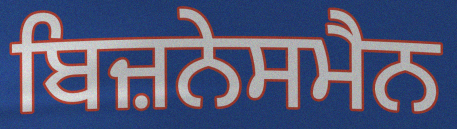
ਬਿਜ਼ਨੇਸਮੈਨ